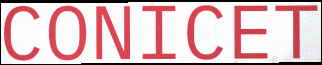
CONICET